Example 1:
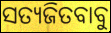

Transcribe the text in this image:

ସତ୍ୟଜିତବାବୁ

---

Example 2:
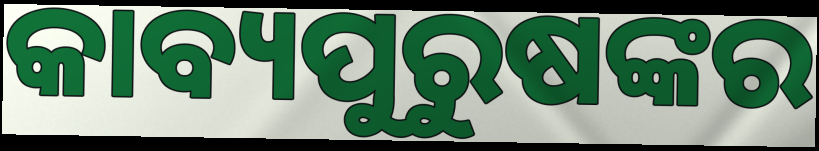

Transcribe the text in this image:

କାବ୍ୟପୁରୁଷଙ୍କର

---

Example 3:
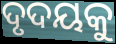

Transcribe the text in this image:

ଦୃଦୟକୁ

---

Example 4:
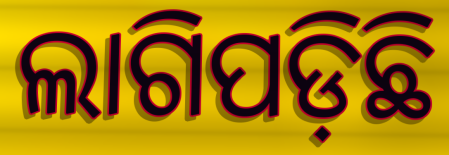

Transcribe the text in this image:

ଲାଗିପଡ଼ିଛି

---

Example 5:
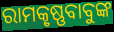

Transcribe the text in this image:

ରାମକୃଷ୍ଣବାବୁଙ୍କ